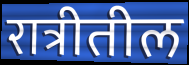
रात्रीतील